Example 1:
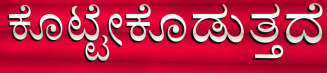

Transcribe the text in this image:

ಕೊಟ್ಟೇಕೊಡುತ್ತದೆ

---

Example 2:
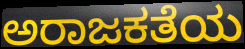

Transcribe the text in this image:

ಅರಾಜಕತೆಯ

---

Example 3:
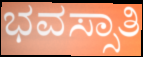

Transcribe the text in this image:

ಭವಸ್ಸಾತಿ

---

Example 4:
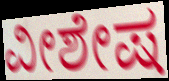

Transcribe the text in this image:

ವೀಶೇಷ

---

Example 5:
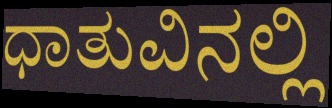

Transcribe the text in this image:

ಧಾತುವಿನಲ್ಲಿ